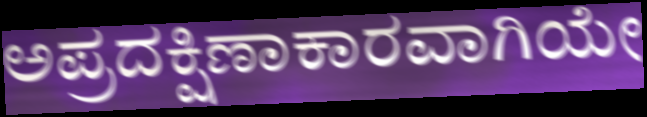
ಅಪ್ರದಕ್ಷಿಣಾಕಾರವಾಗಿಯೇ